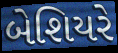
બેશિયરે